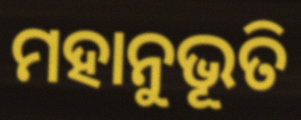
ମହାନୁଭୂତି